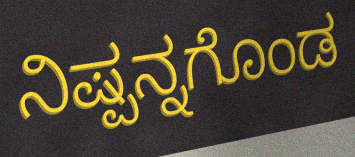
ನಿಷ್ಪನ್ನಗೊಂಡ